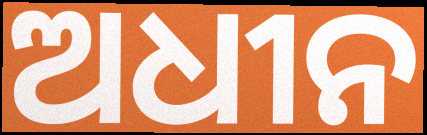
ଅଧୀନ